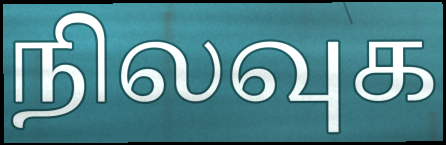
நிலவுக